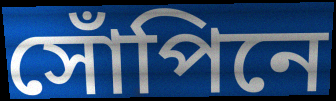
সোঁপিনে